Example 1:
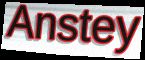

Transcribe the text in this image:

Anstey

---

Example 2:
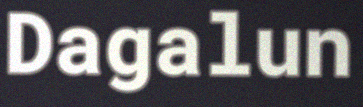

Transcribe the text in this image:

Dagalun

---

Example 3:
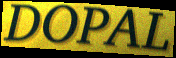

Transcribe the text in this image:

DOPAL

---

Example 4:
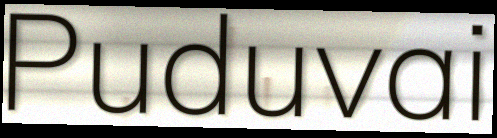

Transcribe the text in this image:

Puduvai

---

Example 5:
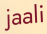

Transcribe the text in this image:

jaali